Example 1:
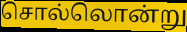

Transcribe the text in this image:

சொல்லொன்று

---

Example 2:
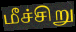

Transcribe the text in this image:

மீச்சிறு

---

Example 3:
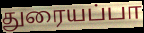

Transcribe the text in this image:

துரையப்பா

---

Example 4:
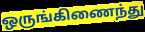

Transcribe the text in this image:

ஒருங்கிணைந்து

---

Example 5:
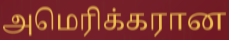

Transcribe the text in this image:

அமெரிக்கரான